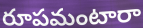
రూపమంటారా